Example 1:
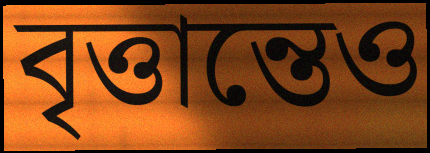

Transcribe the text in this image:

বৃত্তান্তেও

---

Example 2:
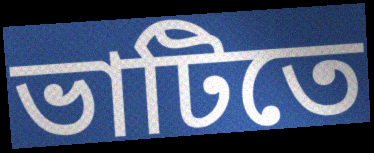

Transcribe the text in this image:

ভাটিতে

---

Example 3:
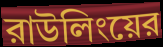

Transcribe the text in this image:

রাউলিংয়ের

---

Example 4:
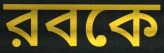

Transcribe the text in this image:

রবকে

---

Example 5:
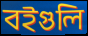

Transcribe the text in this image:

বইগুলি